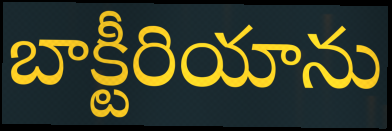
బాక్టీరియాను